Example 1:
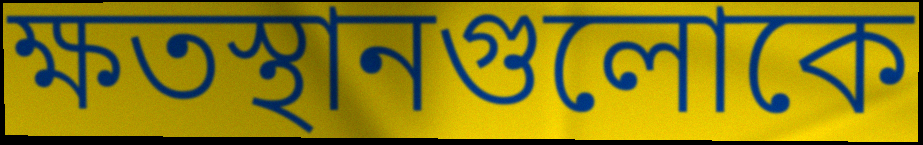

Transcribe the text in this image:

ক্ষতস্থানগুলোকে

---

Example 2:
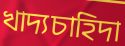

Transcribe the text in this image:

খাদ্যচাহিদা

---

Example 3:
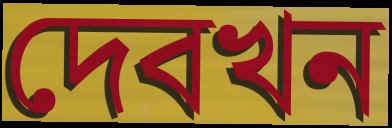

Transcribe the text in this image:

দেবখন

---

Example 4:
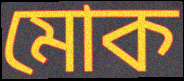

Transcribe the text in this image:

মোক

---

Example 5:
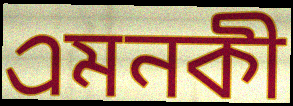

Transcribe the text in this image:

এমনকী